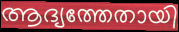
ആദ്യത്തേതായി